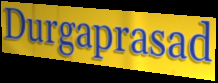
Durgaprasad